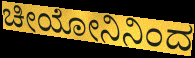
ಚೀಯೋನಿನಿಂದ